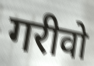
गरीवो